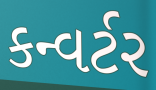
કન્વર્ટર